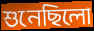
শুনেছিলো